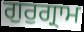
ਗੁਰੁਗ੍ਰਾਮ